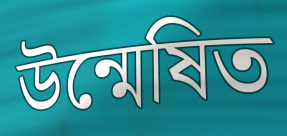
উন্মেষিত